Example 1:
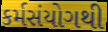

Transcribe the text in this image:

કર્મસંયોગથી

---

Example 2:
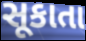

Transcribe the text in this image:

સૂકાતા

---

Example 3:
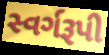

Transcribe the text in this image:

સ્વર્ગરૂપી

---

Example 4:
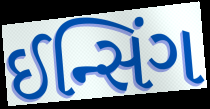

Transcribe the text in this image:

ઈન્સિંગ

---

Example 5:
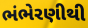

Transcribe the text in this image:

ભંભેરણીથી